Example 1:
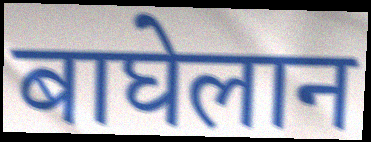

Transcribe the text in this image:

बाघेलान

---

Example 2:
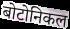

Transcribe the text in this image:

बोटोनिकल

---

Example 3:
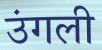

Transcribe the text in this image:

उंगली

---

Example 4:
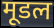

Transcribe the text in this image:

मूडल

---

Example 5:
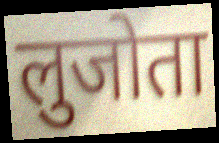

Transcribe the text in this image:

लुजोता